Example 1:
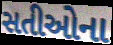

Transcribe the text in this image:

સતીઓના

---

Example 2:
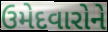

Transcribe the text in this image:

ઉમેદવારોને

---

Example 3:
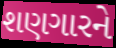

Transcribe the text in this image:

શણગારને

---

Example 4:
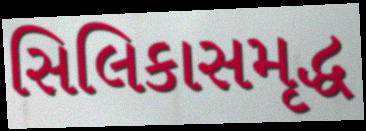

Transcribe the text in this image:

સિલિકાસમૃદ્ધ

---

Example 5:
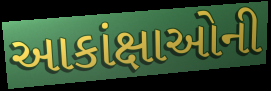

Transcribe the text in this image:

આકાંક્ષાઓની